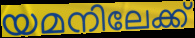
യമനിലേക്ക്